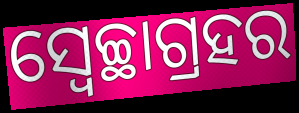
ସ୍ବେଚ୍ଛାଗ୍ରହର